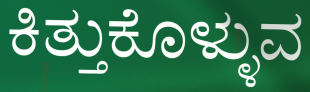
ಕಿತ್ತುಕೊಳ್ಳುವ